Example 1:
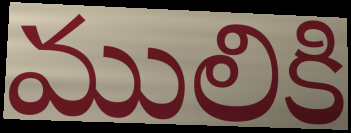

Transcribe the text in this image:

ములికి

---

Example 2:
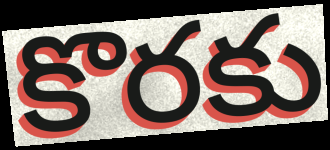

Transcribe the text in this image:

కొరకు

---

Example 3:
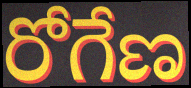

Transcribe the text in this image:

రోగేణ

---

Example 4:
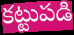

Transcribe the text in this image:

కట్టుపడి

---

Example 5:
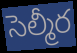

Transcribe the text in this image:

సెల్మీర